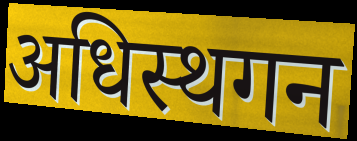
अधिस्थगन